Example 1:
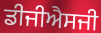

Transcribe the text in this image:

ਡੀਜੀਐਸਜੀ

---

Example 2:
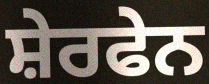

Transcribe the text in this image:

ਸ਼ੇਰਫੇਨ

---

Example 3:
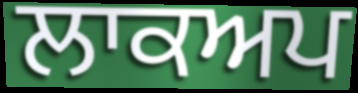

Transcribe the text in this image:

ਲਾਕਅਪ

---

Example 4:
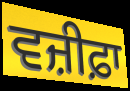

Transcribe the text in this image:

ਵਜ਼ੀਫ਼ਾ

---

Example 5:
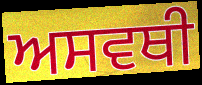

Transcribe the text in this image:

ਅਸਵਥੀ